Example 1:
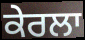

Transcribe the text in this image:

ਕੇਰਲਾ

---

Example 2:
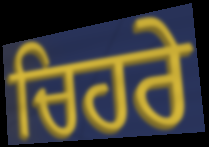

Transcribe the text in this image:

ਚਿਹਰੇ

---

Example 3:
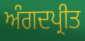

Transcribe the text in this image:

ਅੰਗਦਪ੍ਰੀਤ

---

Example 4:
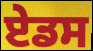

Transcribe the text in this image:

ਏਡਸ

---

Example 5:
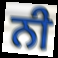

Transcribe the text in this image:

ਨੀ